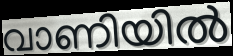
വാണിയിൽ